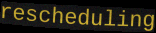
rescheduling